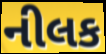
નીલક